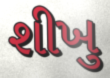
શીખુ